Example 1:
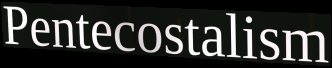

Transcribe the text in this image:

Pentecostalism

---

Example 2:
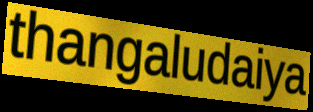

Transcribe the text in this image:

thangaludaiya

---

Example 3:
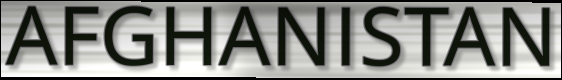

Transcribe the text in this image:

AFGHANISTAN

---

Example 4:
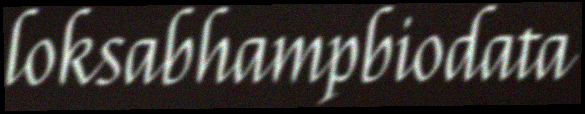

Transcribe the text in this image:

loksabhampbiodata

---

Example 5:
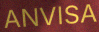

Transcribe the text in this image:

ANVISA